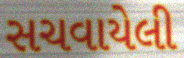
સચવાયેલી